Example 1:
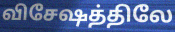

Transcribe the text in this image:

விசேஷத்திலே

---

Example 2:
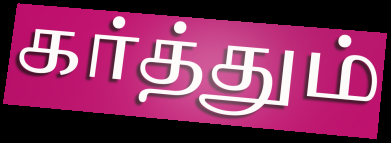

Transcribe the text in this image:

கர்த்தும்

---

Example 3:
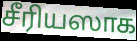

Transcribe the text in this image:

சீரியஸாக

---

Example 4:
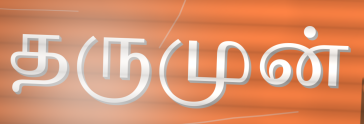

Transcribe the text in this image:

தருமுன்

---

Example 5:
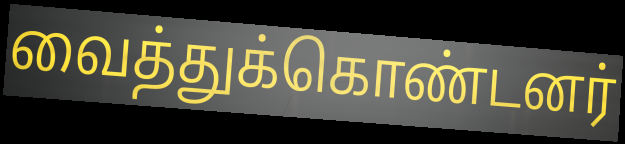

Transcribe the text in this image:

வைத்துக்கொண்டனர்